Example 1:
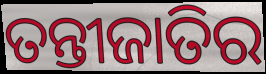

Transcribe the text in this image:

ତନ୍ତୀଜାତିର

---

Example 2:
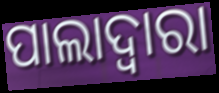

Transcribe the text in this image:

ପାଲାଦ୍ୱାରା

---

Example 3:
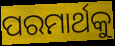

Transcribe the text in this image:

ପରମାର୍ଥକୁ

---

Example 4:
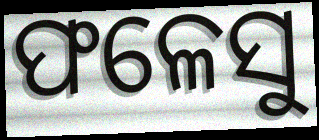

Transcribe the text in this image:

ଫଳେସୁ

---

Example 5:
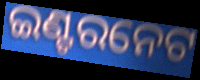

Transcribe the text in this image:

ଇଣ୍ଟରନେଟ